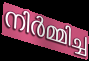
നിർമ്മിച്ച